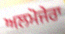
ਅਲਮੋਜੇਰਾ